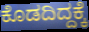
ಕೊಡದಿದ್ದಕ್ಕೆ